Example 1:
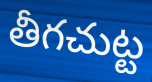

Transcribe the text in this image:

తీగచుట్ట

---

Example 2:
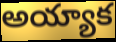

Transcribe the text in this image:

అయ్యాక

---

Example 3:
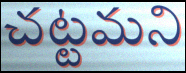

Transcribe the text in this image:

చట్టమని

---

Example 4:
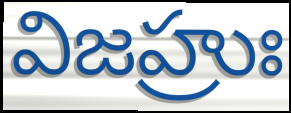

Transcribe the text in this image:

విజహ్రుః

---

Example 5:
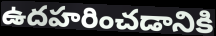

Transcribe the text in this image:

ఉదహరించడానికి